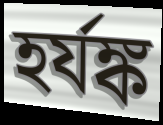
হর্যঙ্ক